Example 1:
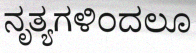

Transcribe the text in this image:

ನೃತ್ಯಗಳಿಂದಲೂ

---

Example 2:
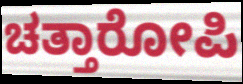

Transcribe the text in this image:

ಚತ್ತಾರೋಪಿ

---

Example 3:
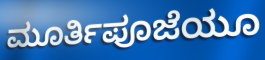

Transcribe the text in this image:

ಮೂರ್ತಿಪೂಜೆಯೂ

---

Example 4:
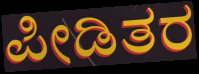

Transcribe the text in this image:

ಪೀಡಿತರ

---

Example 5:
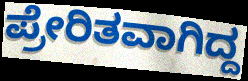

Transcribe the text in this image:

ಪ್ರೇರಿತವಾಗಿದ್ದ